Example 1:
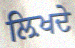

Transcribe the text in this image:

ਲ਼ਿਖਦੇ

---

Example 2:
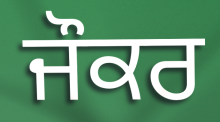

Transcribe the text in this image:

ਜੌਕਰ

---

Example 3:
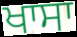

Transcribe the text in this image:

ਖਾਸਾ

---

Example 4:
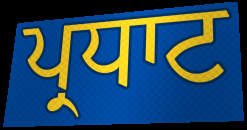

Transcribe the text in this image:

ਪ੍ਰਧਾਟ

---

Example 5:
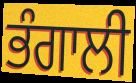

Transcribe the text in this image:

ਭੰਗਾਲੀ